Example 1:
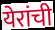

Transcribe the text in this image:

येरांची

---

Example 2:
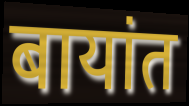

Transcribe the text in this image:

बायांत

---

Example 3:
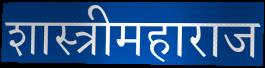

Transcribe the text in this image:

शास्त्रीमहाराज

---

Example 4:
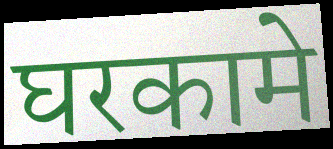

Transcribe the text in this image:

घरकामे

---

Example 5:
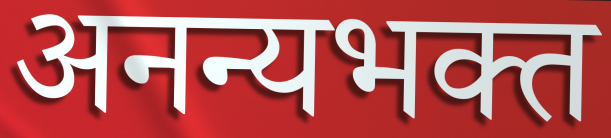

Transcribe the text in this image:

अनन्यभक्त